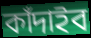
কাঁদাইব